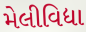
મેલીવિદ્યા